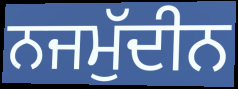
ਨਜਮੁੱਦੀਨ